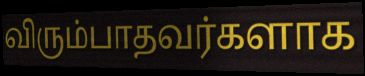
விரும்பாதவர்களாக